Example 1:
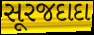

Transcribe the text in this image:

સૂરજદાદા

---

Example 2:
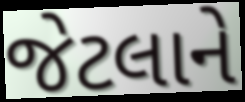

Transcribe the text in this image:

જેટલાને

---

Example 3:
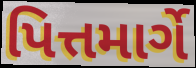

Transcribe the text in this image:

પિત્તમાર્ગે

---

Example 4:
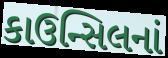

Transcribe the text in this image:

કાઉન્સિલનાં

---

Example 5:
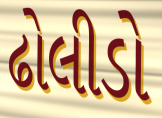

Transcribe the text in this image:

ઢોલીડો